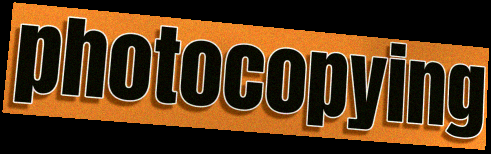
photocopying